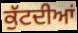
ਕੁੱਟਦੀਆਂ